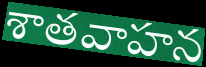
శాతవాహన